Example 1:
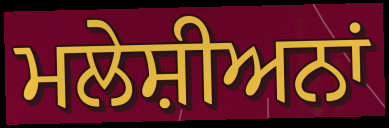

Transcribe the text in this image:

ਮਲੇਸ਼ੀਅਨਾਂ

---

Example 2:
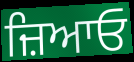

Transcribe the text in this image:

ਜ਼ਿਆਓ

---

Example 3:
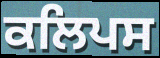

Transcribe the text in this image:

ਕਲਿਪਸ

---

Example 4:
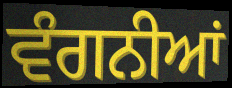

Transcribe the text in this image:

ਵੰਗਨੀਆਂ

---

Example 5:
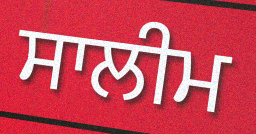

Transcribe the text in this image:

ਸਾਲੀਮ